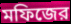
মফিজের